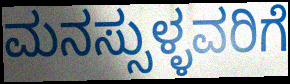
ಮನಸ್ಸುಳ್ಳವರಿಗೆ